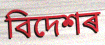
বিদেশৰ